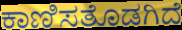
ಕಾಣಿಸತೊಡಗಿದೆ